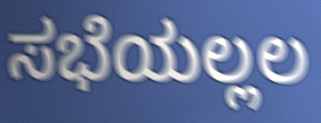
ಸಭೆಯಲ್ಲಲ